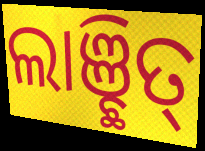
ଲାଞ୍ଛିତ୍